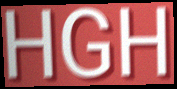
HGH